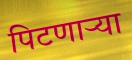
पिटणाऱ्या